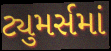
ટ્યુમર્સમાં